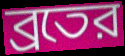
ব্রতের